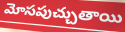
మోసపుచ్చుతాయి